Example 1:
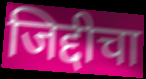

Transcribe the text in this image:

जिद्दीचा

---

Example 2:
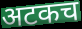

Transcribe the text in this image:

अटकच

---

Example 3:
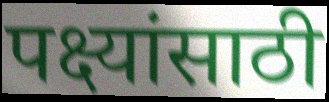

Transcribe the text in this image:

पक्ष्यांसाठी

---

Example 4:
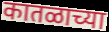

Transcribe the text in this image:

कातळाच्या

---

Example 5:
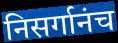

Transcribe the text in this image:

निसर्गानंच